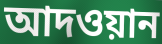
আদওয়ান